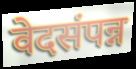
वेदसंपन्न